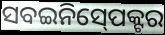
ସବଇନିସ୍‍ପେକ୍ଟର